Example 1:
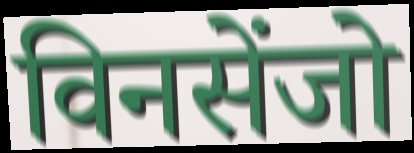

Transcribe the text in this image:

विनसेंजो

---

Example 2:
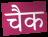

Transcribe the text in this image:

चैक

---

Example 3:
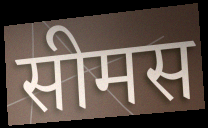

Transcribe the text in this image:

सीमस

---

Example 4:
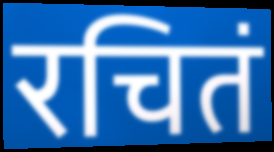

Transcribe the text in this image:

रचितं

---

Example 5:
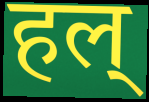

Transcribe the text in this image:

हल्